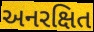
અનરક્ષિત